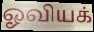
ஓவியக்